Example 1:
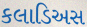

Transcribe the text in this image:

કલાડિઅસ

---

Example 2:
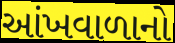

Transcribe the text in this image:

આંખવાળાનો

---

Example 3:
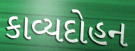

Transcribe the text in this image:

કાવ્યદોહન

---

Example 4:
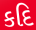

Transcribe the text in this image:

કદિ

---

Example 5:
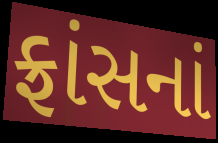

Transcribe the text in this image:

ફ્રાંસનાં